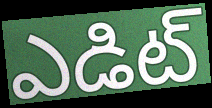
ఎడిట్